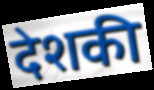
देशकी